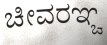
ಚೀವರಞ್ಚ